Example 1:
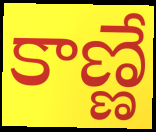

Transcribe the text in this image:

కాణ్ణే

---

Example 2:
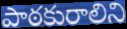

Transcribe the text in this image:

పాఠకురాలిని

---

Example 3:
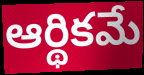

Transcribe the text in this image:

ఆర్థికమే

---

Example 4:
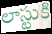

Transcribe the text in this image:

లాస్టుకి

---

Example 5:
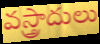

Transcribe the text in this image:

వస్త్రాదులు